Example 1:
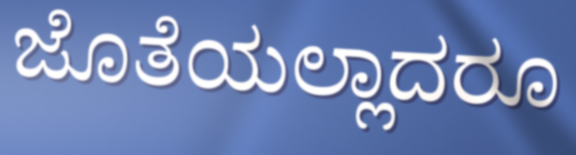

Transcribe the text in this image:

ಜೊತೆಯಲ್ಲಾದರೂ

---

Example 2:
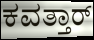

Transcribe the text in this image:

ಕವತ್ತಾರ್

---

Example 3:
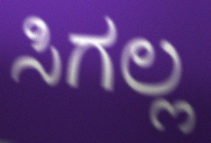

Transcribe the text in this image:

ಸಿಗಲ್ಲ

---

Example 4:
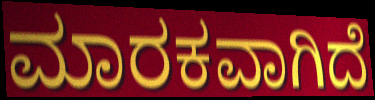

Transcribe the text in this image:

ಮಾರಕವಾಗಿದೆ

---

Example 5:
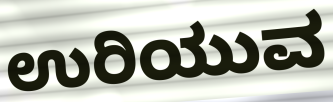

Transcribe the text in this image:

ಉರಿಯುವ